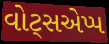
વોટ્સએપ્પ